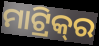
ମାଟ୍ରିକ୍‌ର